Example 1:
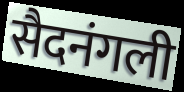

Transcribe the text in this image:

सैदनंगली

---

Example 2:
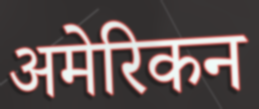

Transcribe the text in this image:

अमेरिकन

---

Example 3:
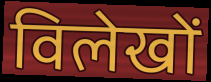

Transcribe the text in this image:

विलेखों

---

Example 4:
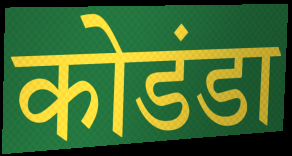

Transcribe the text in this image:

कोडंडा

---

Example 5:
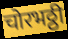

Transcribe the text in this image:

चोरभठ्ठी